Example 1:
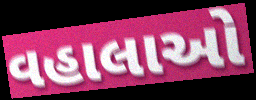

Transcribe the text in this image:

વહાલાઓ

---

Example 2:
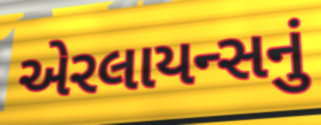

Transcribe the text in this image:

એરલાયન્સનું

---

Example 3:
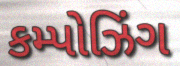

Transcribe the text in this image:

કમ્પોઝિંગ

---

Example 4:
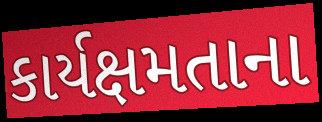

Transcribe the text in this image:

કાર્યક્ષમતાના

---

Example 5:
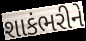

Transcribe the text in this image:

શાકંભરીને